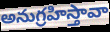
అనుగ్రహిస్తావా